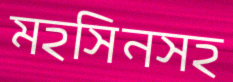
মহসিনসহ